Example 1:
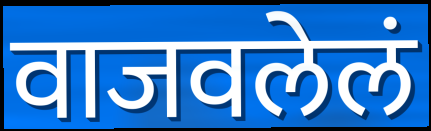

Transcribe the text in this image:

वाजवलेलं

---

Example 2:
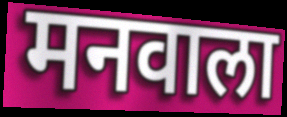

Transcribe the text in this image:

मनवाला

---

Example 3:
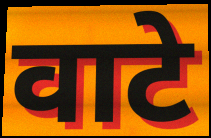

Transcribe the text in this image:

वाटे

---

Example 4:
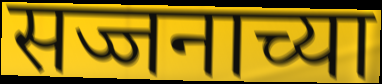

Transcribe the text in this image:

सज्जनाच्या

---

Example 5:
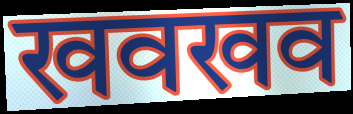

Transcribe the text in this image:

खवखव